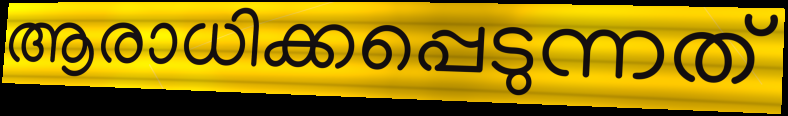
ആരാധിക്കപ്പെടുന്നത്